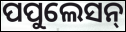
ପପୁଲେସନ୍